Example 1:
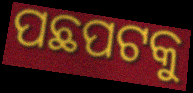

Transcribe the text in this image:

ପଛପଟକୁ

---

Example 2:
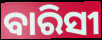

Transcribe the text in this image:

ବାରିସୀ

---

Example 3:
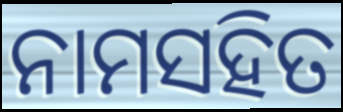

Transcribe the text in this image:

ନାମସହିତ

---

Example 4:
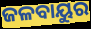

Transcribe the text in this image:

ଜଳବାୟୁର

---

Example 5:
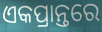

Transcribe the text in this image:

ଏକପ୍ରାନ୍ତରେ